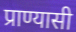
प्राण्यासी